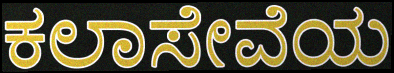
ಕಲಾಸೇವೆಯ